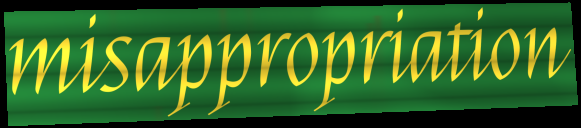
misappropriation